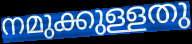
നമുക്കുള്ളതു